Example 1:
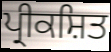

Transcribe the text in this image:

ਪ੍ਰੀਕਸ਼ਿਤ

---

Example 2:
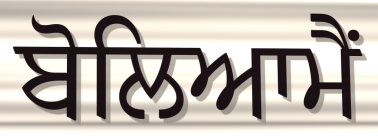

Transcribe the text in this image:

ਬੋਲਿਆਮੈਂ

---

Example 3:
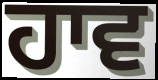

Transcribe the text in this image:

ਹਾਵ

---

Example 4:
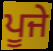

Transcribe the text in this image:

ਪੂਜੇ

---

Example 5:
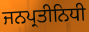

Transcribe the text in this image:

ਜਨਪ੍ਰਤੀਨਿਧੀ